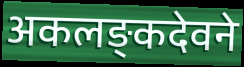
अकलङ्कदेवने